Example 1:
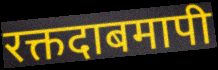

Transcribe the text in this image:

रक्तदाबमापी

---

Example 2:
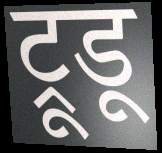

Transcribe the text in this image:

ट्रूडू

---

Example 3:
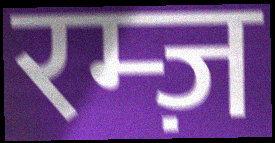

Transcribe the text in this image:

रम्ज़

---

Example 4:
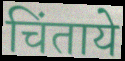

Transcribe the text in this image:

चिंताये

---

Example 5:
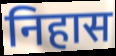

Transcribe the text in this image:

निहास